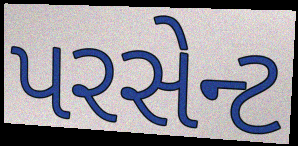
પરસેન્ટ